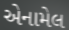
એનામેલ